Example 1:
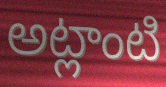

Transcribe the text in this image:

అట్లాంటి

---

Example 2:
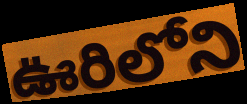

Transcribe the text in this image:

ఊరిలోని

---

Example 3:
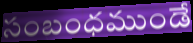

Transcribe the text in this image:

సంబంధముండే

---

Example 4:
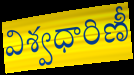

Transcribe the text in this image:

విశ్వధారిణీ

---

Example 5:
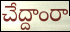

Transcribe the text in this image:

చేద్దాంరా